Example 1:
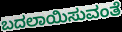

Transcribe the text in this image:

ಬದಲಾಯಿಸುವಂತೆ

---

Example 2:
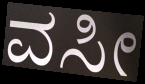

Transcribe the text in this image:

ವಸೀ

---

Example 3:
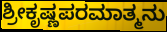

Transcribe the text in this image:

ಶ್ರೀಕೃಷ್ಣಪರಮಾತ್ಮನು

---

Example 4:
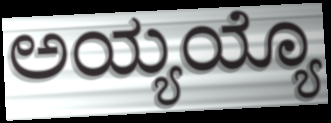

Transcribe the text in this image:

ಅಯ್ಯಯ್ಯೊ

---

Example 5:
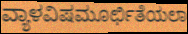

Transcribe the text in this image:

ವ್ಯಾಳವಿಷಮೂರ್ಛಿತೆಯಲಾ